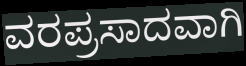
ವರಪ್ರಸಾದವಾಗಿ